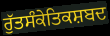
ਰੁੱਤਸੰਕੇਤਿਕਸ਼ਬਦ